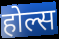
होल्स